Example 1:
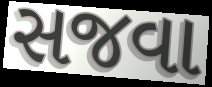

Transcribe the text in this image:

સજવા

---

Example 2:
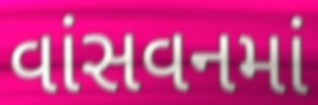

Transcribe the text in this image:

વાંસવનમાં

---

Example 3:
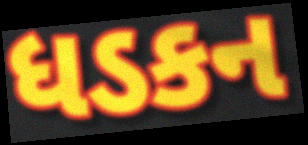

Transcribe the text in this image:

ધડકન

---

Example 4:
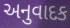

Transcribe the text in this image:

અનુવાદક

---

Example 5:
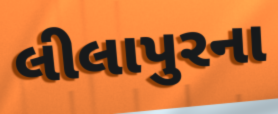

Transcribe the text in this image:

લીલાપુરના